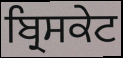
ਬ੍ਰਿਸਕੇਟ